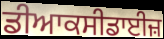
ਡੀਆਕਸੀਡਾਈਜ਼